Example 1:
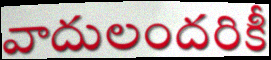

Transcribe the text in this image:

వాదులందరికీ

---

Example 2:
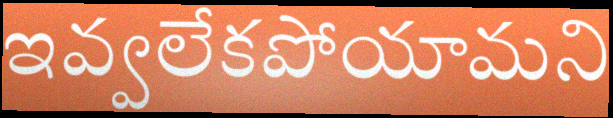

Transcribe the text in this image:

ఇవ్వలేకపోయామని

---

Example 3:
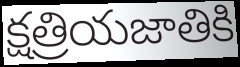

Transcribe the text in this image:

క్షత్రియజాతికి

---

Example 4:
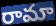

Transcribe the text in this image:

రామా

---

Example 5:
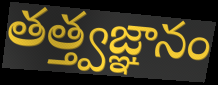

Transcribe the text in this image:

తత్త్వజ్ఞానం